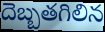
దెబ్బతగిలిన